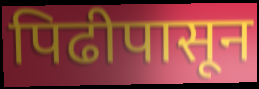
पिढीपासून